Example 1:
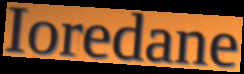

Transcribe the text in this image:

Ioredane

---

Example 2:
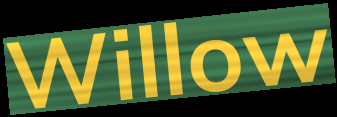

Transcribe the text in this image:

Willow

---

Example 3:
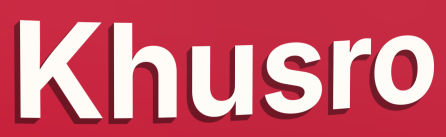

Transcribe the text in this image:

Khusro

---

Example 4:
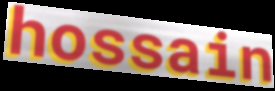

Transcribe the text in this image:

hossain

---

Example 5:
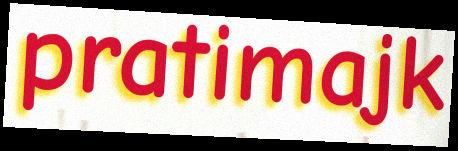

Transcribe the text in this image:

pratimajk